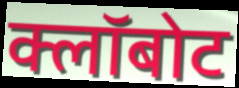
क्लॉबोट